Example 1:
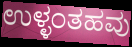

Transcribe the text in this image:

ಉಳ್ಳಂತಹವು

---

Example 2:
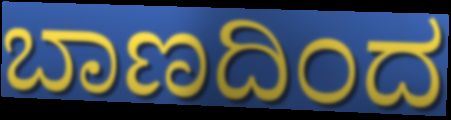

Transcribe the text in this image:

ಬಾಣದಿಂದ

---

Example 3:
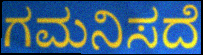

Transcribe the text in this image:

ಗಮನಿಸದೆ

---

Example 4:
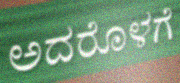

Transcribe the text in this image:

ಅದರೊಳಗೆ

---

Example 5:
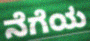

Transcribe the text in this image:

ನೆಗೆಯ